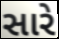
સારે